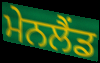
ਮੇਨਲੈਂਡ